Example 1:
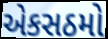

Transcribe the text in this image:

એકસઠમો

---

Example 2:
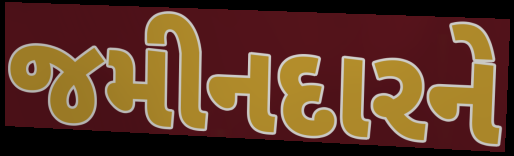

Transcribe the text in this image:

જમીનદારને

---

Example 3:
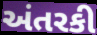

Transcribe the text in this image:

અંતરકી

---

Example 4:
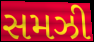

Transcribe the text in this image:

સમઝી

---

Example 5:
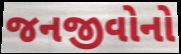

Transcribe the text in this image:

જનજીવોનો